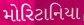
મોરિટાનિયા